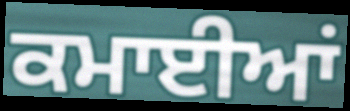
ਕਮਾਈਆਂ